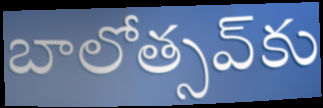
బాలోత్సవ్‌కు